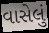
વાસેલું